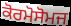
ਕੋਰਮੋਸੋਮਜ